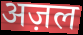
अज़ल